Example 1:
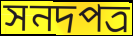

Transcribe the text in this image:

সনদপত্র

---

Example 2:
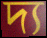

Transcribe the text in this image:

দ্য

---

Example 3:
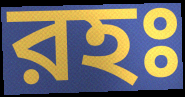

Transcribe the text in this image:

রহঃ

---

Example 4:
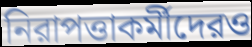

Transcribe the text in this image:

নিরাপত্তাকর্মীদেরও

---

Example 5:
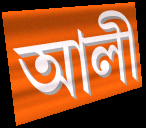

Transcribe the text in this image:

আলী